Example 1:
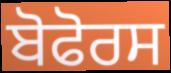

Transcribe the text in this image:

ਬੋਫੋਰਸ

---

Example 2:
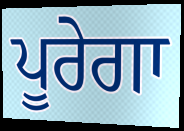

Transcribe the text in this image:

ਪੂਰੇਗਾ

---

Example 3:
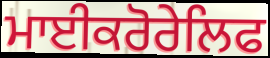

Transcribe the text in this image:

ਮਾਈਕਰੋਰੇਲਿਫ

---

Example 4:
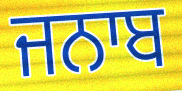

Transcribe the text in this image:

ਜਨਾਬ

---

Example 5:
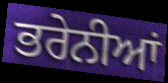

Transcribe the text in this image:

ਭਰੇਨੀਆਂ